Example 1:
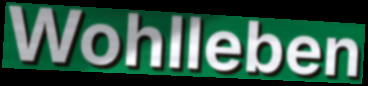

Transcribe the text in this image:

Wohlleben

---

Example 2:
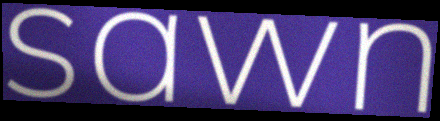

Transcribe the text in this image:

sawn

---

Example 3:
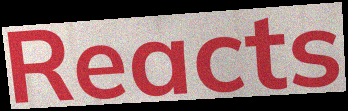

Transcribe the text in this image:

Reacts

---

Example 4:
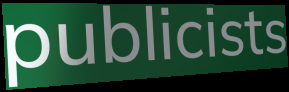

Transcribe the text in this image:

publicists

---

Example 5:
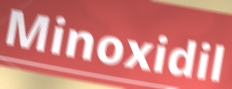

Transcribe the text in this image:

Minoxidil